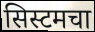
सिस्टमचा